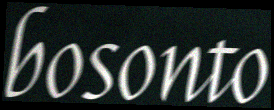
bosonto